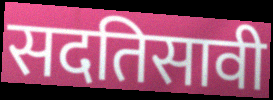
सदतिसावी